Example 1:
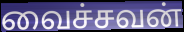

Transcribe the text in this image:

வைச்சவன்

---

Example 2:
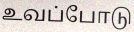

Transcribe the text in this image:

உவப்போடு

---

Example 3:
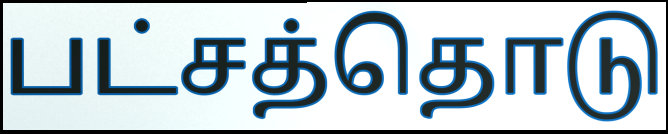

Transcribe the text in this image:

பட்சத்தொடு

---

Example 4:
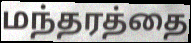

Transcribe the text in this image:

மந்தரத்தை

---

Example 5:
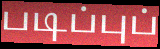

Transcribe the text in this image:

படிப்புப்